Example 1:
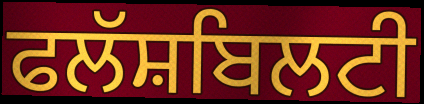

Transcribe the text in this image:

ਫਲੱਸ਼ਬਿਲਟੀ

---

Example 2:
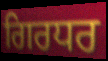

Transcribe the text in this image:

ਗਿਰਧਰ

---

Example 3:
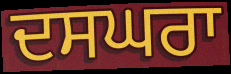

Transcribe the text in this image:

ਦਸਘਰਾ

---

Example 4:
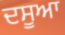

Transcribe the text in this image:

ਦਸੂਆ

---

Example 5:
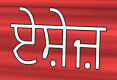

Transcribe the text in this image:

ਏਸ਼ੇਜ਼